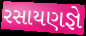
રસાયણજ્ઞે